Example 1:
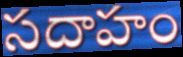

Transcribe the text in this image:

సదాహం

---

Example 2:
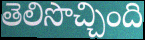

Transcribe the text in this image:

తెలిసొచ్చింది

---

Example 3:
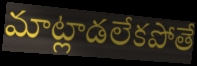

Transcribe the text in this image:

మాట్లాడలేకపోతే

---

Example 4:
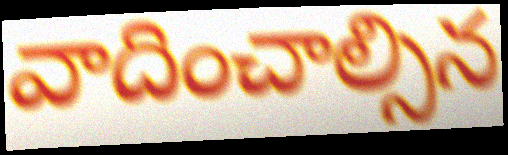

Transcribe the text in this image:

వాదించాల్సిన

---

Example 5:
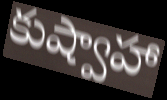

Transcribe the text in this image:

కుష్వాహా